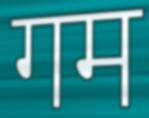
गम